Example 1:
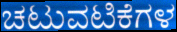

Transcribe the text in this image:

ಚಟುವಟಿಕೆಗಳ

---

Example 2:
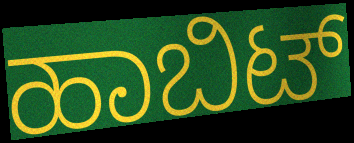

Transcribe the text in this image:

ಹಾಬಿಟ್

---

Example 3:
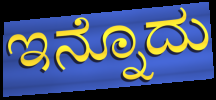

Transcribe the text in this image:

ಇನ್ನೊದು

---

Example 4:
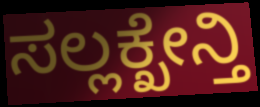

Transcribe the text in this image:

ಸಲ್ಲಕ್ಖೇನ್ತಿ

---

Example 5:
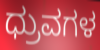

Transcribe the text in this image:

ಧ್ರುವಗಳ